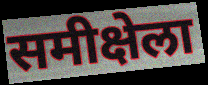
समीक्षेला